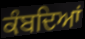
ਕੰਬਦਿਆਂ